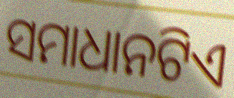
ସମାଧାନଟିଏ